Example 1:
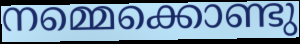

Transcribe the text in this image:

നമ്മെക്കൊണ്ടു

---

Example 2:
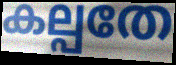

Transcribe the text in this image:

കല്പതേ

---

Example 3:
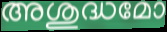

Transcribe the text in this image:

അശുദ്ധമോ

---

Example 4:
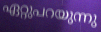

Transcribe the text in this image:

ഏറ്റുപറയുന്നു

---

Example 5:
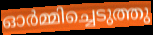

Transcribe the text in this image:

ഓർമ്മിച്ചെടുത്തു